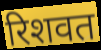
रिशवत